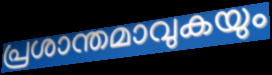
പ്രശാന്തമാവുകയും